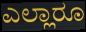
ಎಲ್ಲಾರೂ